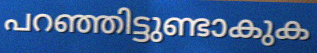
പറഞ്ഞിട്ടുണ്ടാകുക